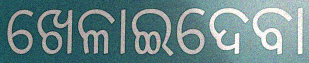
ଖେଳାଇଦେବା